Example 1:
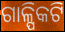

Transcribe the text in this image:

ଗାଳ୍ପିକଟି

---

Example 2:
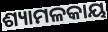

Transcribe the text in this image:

ଶ୍ୟାମଳକାୟ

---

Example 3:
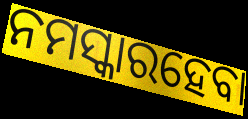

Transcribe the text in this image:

ନମସ୍କାରହେବା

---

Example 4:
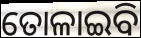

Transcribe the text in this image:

ତୋଳାଇବି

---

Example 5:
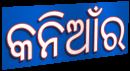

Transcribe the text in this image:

କନିଆଁର